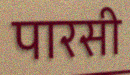
पारसी